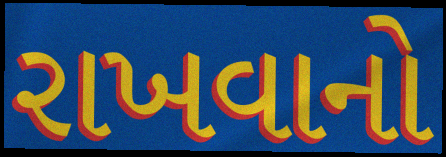
રાખવાનો